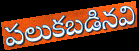
పలుకబడినవి